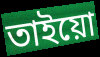
তাইয়ো